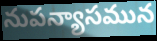
నుపన్యాసమున